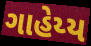
ગાહેય્ય